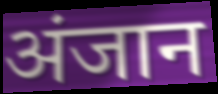
अंजान